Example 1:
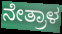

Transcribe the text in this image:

ನೇತ್ರಾಳ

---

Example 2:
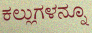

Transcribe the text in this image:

ಕಲ್ಲುಗಳನ್ನೂ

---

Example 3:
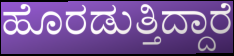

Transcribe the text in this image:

ಹೊರಡುತ್ತಿದ್ದಾರೆ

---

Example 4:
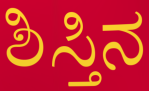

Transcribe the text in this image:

ಶಿಸ್ತಿನ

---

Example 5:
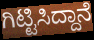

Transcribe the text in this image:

ಗಿಟ್ಟಿಸಿದ್ದಾನೆ